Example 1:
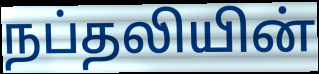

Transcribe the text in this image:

நப்தலியின்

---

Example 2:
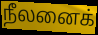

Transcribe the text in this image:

நீலனைக்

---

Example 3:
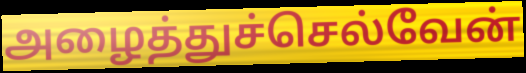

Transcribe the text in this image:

அழைத்துச்செல்வேன்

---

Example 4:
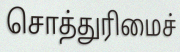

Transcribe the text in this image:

சொத்துரிமைச்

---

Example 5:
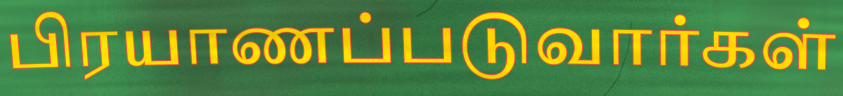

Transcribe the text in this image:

பிரயாணப்படுவார்கள்